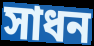
সাধন